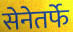
सेनेतर्फे